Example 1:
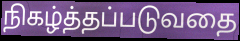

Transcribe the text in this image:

நிகழ்த்தப்படுவதை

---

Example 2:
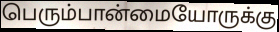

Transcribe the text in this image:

பெரும்பான்மையோருக்கு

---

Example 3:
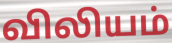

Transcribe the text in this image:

விலியம்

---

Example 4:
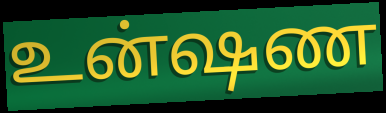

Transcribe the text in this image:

உன்ஷண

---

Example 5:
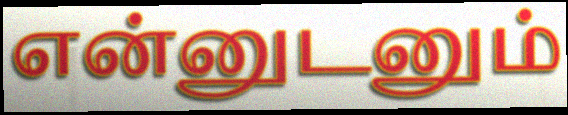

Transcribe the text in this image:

என்னுடனும்